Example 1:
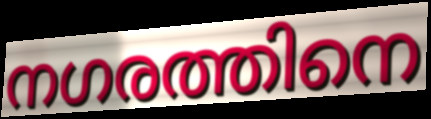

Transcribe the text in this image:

നഗരത്തിനെ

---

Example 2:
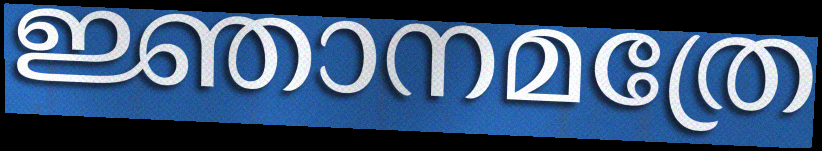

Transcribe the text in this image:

ജ്ഞാനമത്രേ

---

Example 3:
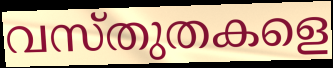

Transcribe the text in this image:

വസ്തുതകളെ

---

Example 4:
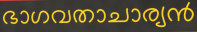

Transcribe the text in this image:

ഭാഗവതാചാര്യൻ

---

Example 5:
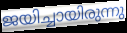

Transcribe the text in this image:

ജയിച്ചായിരുന്നു